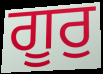
ਗੂਰੁ